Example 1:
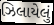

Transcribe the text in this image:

ઝિલાયેલું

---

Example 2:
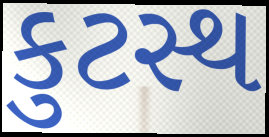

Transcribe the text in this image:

કુટસ્થ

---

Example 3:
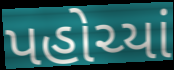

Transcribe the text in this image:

પહોચ્યાં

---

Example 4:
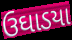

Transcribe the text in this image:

ઉઘાડયા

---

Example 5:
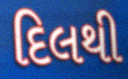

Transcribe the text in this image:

દિલથી